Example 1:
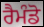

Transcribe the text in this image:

ਰੈਮੰਡੋ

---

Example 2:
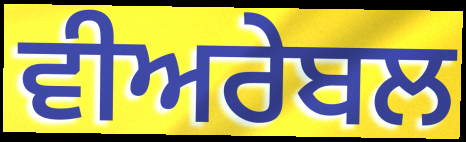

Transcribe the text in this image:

ਵੀਅਰੇਬਲ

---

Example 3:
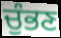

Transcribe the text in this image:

ਚੁੰਭਣ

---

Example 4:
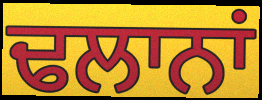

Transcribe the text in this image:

ਢਲਾਨਾਂ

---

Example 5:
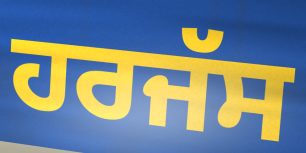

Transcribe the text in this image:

ਹਰਜੱਸ